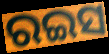
ରଇସ